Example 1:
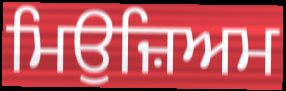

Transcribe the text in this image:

ਮਿਉਜ਼ਿਅਮ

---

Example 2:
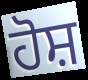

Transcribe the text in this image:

ਹੋਸ਼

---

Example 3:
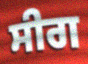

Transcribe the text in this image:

ਸੀਗ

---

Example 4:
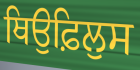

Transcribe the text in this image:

ਥਿਉਫ਼ਿਲੁਸ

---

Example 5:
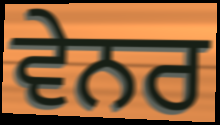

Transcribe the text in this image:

ਵੇਨਰ